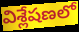
విశ్లేషణలో